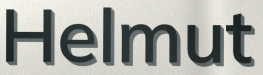
Helmut